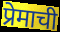
प्रेमाची